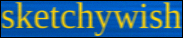
sketchywish